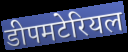
डीपमटेरियल